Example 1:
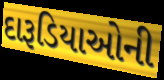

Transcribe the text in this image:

દારૂડિયાઓની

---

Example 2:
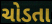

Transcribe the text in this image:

ચોડતા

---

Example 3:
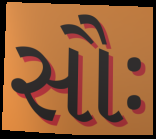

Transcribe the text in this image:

સૌઃ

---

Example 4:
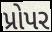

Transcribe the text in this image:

પ્રોપર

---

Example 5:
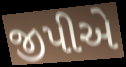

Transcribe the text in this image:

જીપીએ